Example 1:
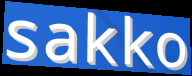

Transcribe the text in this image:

sakko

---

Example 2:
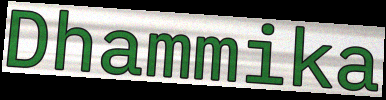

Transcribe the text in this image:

Dhammika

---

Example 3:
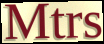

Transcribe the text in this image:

Mtrs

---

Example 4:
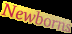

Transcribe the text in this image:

Newborns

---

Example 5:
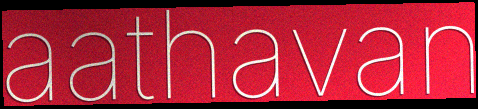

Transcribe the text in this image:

aathavan